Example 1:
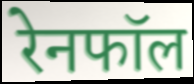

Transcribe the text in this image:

रेनफॉल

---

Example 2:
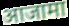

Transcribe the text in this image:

आजामा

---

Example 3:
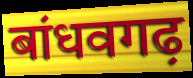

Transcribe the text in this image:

बांधवगढ़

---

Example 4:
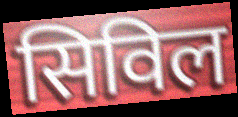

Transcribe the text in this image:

सिविल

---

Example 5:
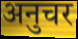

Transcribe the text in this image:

अनुचर